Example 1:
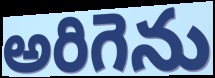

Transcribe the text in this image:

అరిగెను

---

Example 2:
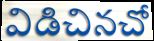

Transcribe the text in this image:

విడిచినచో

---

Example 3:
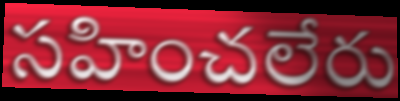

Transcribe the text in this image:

సహించలేరు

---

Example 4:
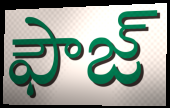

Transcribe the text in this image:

ఫౌజ్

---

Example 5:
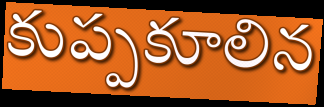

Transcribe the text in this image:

కుప్పకూలిన